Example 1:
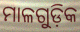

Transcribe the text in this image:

ମାଳଗୁଡ଼ିକ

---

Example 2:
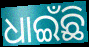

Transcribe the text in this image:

ଧାଇଁଛି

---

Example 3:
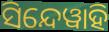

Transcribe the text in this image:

ସିନ୍ଦେୱାହି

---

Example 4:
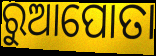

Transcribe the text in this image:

ରୁଆପୋତା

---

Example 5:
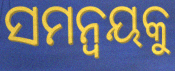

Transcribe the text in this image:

ସମନ୍ବୟକୁ